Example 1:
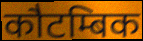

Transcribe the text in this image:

कौटम्बिक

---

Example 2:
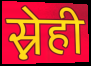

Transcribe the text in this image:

स्नेही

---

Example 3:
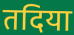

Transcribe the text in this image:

तदिया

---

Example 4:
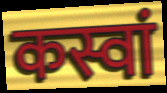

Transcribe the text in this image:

कस्वां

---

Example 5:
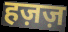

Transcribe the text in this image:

हज़ज़